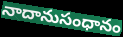
నాదానుసంధానం